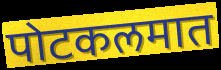
पोटकलमात